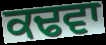
ਕਢਵਾ